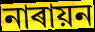
নাৰায়ন